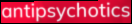
antipsychotics